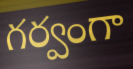
గర్వంగా